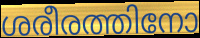
ശരീരത്തിനോ